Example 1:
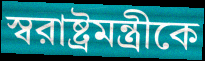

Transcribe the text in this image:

স্বরাষ্ট্রমন্ত্রীকে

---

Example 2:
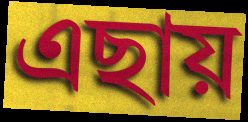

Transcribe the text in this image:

এছায়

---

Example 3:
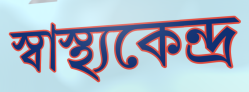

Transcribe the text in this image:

স্বাস্থ্যকেন্দ্র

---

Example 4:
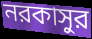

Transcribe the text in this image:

নরকাসুর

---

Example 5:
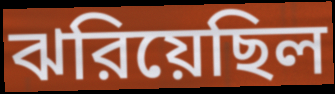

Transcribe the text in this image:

ঝরিয়েছিল